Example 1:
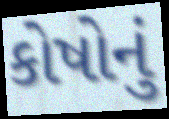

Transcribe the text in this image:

કોષોનું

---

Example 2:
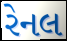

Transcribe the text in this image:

રેનલ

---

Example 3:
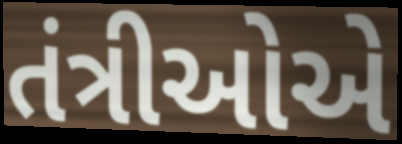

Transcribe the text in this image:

તંત્રીઓએ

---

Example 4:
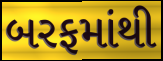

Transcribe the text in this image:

બરફમાંથી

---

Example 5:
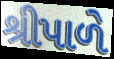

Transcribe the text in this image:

શ્રીપાળે